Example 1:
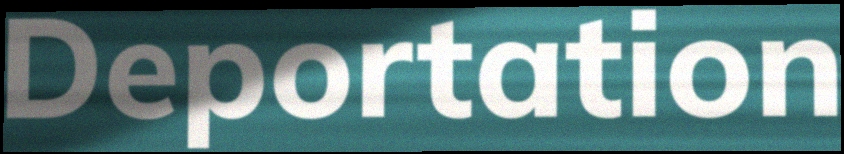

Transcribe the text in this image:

Deportation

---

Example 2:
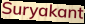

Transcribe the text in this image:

Suryakant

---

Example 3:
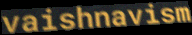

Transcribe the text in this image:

vaishnavism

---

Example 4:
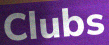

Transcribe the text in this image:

Clubs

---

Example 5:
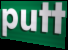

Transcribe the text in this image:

putt